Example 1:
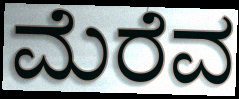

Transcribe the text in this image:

ಮೆರೆವ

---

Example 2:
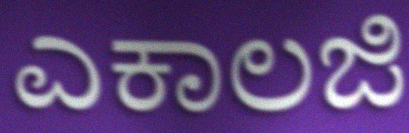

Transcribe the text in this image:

ಎಕಾಲಜಿ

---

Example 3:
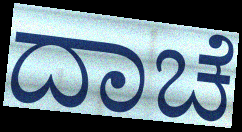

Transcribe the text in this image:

ದಾಚೆ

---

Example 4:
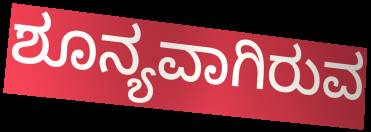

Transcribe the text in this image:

ಶೂನ್ಯವಾಗಿರುವ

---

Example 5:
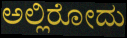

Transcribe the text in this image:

ಅಲ್ಲಿರೋದು